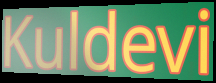
Kuldevi